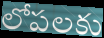
లోపలకు